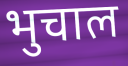
भुचाल